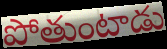
పోతుంటాడు